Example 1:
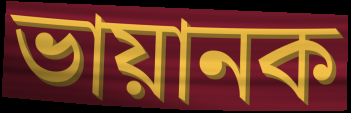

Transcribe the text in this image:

ভায়ানক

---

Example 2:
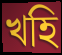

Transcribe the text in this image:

খহি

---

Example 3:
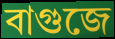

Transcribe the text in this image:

বাগুজে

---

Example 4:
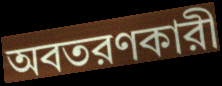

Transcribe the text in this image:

অবতরণকারী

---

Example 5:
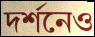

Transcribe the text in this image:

দর্শনেও